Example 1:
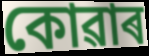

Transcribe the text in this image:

কোৱাৰ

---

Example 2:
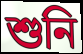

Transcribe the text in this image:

শুনি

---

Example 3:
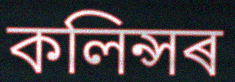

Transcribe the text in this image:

কলিন্সৰ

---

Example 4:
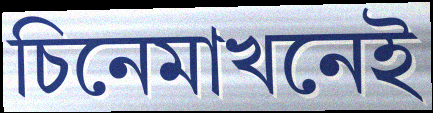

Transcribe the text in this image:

চিনেমাখনেই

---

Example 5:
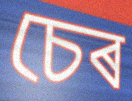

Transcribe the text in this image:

চেৰ